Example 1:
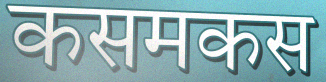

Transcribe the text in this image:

कसमकस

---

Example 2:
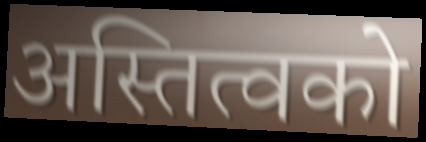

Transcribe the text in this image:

अस्तित्वको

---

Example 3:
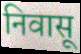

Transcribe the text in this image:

निवासू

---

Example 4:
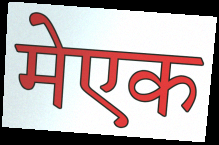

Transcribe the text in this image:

मेएक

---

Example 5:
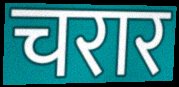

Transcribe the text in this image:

चरार